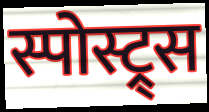
स्पोस्ट्र्स